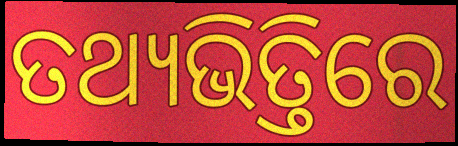
ତଥ୍ୟଭିତ୍ତିରେ